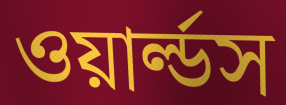
ওয়ার্ল্ডস